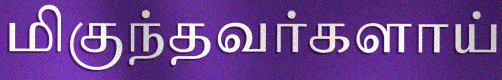
மிகுந்தவர்களாய்